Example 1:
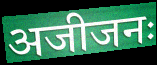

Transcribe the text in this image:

अजीजनः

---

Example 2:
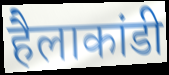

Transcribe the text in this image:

हैलाकांडी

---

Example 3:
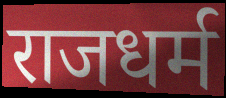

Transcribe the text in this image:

राजधर्म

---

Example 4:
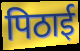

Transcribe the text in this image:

पिठाई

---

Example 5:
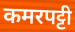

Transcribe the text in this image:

कमरपट्टी